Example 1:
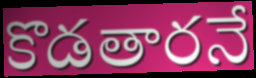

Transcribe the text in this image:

కొడతారనే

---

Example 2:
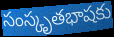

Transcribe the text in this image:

సంస్కృతభాషకు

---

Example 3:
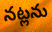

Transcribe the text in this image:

నట్లను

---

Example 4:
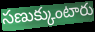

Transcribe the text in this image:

సణుక్కుంటారు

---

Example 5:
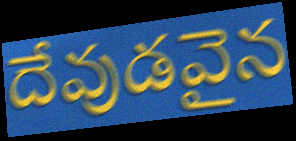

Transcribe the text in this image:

దేవుడవైన